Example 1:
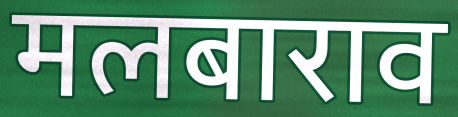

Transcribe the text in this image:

मलबाराव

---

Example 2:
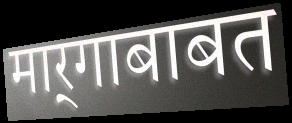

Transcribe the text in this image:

मार्गाबाबत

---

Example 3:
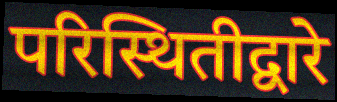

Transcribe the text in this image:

परिस्थितीद्वारे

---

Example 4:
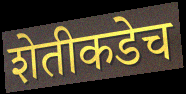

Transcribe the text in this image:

शेतीकडेच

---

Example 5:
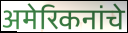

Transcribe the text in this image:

अमेरिकनांचे